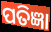
ପତିଜ୍ଞା